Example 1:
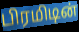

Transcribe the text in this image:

பிரமிடின்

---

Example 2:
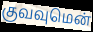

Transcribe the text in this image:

குவவுமென்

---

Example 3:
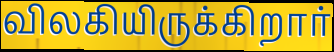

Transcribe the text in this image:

விலகியிருக்கிறார்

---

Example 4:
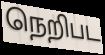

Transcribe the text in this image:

நெறிபட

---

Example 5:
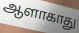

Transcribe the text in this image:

ஆளாகாது